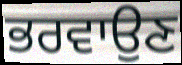
ਭਰਵਾਉਣ